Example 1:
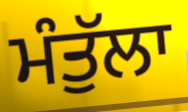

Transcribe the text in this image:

ਮੰਤੁੱਲਾ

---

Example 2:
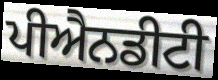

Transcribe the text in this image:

ਪੀਐਨਡੀਟੀ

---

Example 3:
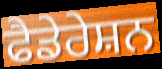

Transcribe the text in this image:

ਫੈਡੇਰੇਸ਼ਨ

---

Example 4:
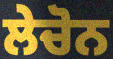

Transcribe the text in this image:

ਲੇਚੋਨ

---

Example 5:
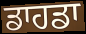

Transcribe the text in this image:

ਡਾਹਡਾ